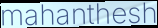
mahanthesh